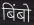
बिंबो